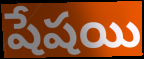
షేషయి